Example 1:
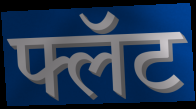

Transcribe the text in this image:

फ्लॅट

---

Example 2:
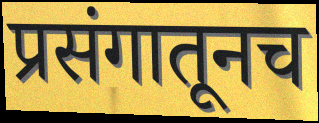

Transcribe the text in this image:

प्रसंगातूनच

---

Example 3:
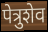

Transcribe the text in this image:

पेत्रुशेव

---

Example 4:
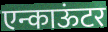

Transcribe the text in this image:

एन्काऊंटर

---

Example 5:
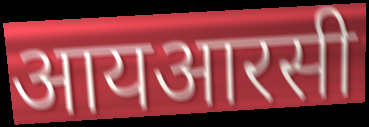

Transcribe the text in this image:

आयआरसी